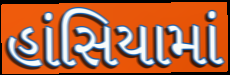
હાંસિયામાં